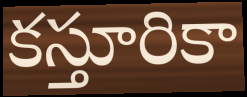
కస్తూరికా